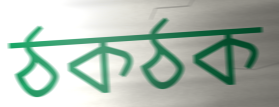
ঠকঠক